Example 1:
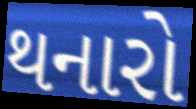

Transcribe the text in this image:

થનારો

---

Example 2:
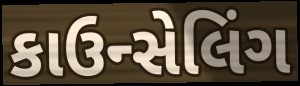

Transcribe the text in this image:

કાઉન્સેલિંગ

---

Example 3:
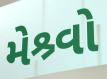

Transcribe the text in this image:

મેશ્ર્વો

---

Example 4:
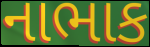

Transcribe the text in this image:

નાભાક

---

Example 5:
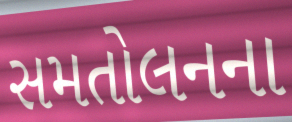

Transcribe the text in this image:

સમતોલનના